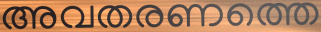
അവതരണത്തെ